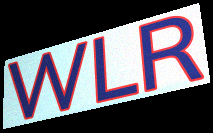
WLR